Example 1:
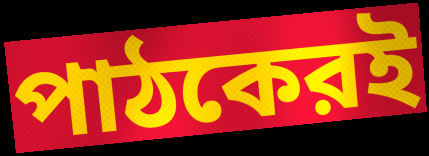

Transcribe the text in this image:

পাঠকেরই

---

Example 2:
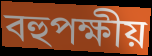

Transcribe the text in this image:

বহুপক্ষীয়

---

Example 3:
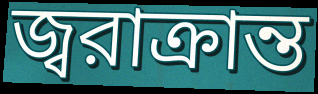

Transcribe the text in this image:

জ্বরাক্রান্ত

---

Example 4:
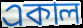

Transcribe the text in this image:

একাল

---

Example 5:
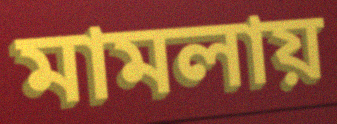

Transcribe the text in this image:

মামলায়